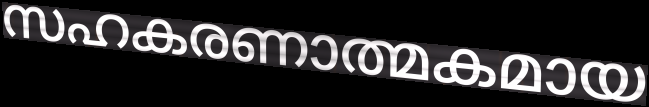
സഹകരണാത്മകമായ